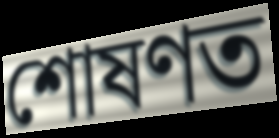
শোষণত